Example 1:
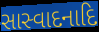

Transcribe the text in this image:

સાસ્વાદનાદિ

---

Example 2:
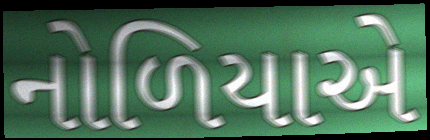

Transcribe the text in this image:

નોળિયાએ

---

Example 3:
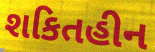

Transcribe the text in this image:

શકિતહીન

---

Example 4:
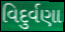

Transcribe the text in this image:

વિદુર્વણા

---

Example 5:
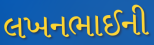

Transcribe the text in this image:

લખનભાઈની